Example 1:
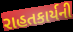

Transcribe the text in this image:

રાહતકાર્યની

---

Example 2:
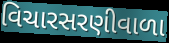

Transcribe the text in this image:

વિચારસરણીવાળા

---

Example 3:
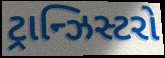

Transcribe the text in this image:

ટ્રાન્ઝિસ્ટરો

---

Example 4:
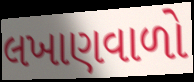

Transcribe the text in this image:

લખાણવાળો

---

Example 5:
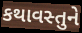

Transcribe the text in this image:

કથાવસ્તુને